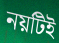
নয়টিই